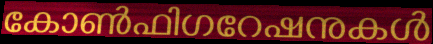
കോൺഫിഗറേഷനുകൾ